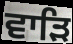
ਵਾੜਿ